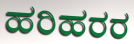
ಹರಿಹರರ